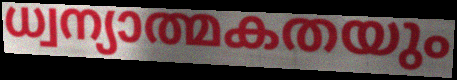
ധ്വന്യാത്മകതയും